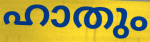
ഹാതും